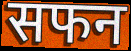
सफन